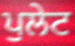
ਪੁਲੇਟ